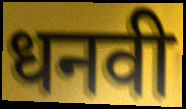
धनवी